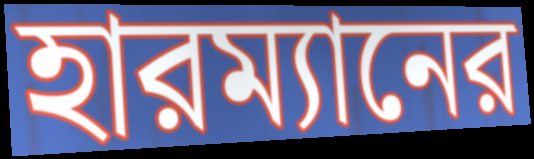
হারম্যানের